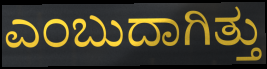
ಎಂಬುದಾಗಿತ್ತು